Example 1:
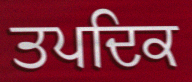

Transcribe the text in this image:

ਤਪਦਿਕ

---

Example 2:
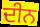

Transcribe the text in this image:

ਦੀਨ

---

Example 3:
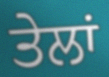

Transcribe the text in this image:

ਤੇਲਾਂ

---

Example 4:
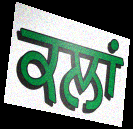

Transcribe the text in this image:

ਕਲਾਂ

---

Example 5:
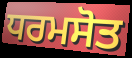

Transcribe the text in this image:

ਧਰਮਸੋਤ